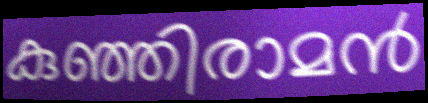
കുഞ്ഞിരാമൻ